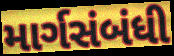
માર્ગસંબંધી